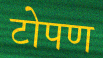
टोपण